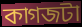
কাগজটা